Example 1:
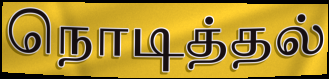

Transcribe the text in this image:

நொடித்தல்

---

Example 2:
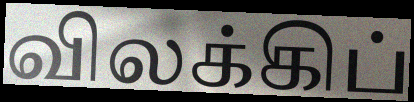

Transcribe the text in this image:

விலக்கிப்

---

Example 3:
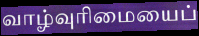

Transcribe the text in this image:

வாழ்வுரிமையைப்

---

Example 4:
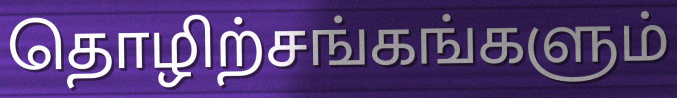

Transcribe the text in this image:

தொழிற்சங்கங்களும்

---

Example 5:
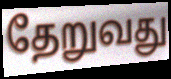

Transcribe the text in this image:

தேறுவது